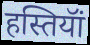
हस्तियॉं